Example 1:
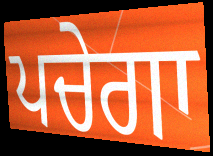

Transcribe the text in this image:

ਪਚੇਗਾ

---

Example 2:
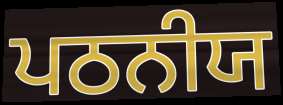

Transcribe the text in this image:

ਪਠਨੀਯ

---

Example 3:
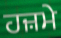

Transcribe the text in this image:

ਹਜ਼ਮੇ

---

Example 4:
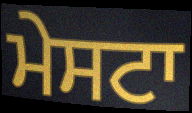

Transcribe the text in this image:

ਮੇਸਟਾ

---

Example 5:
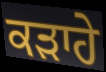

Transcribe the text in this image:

ਕੜਾਹੇ